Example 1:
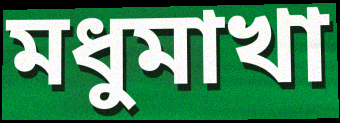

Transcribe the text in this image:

মধুমাখা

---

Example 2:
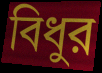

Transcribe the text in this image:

বিধুর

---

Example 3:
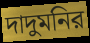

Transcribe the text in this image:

দাদুমনির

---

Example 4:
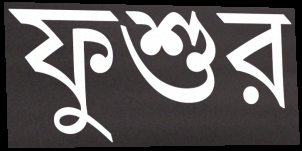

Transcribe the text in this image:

ফুশুর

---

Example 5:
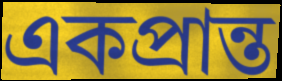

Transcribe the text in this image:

একপ্রান্ত